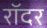
रॉदर